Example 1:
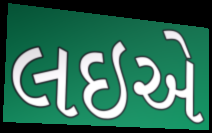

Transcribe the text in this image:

લઇએ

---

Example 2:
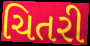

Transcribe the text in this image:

ચિતરી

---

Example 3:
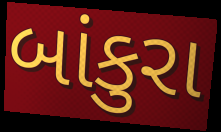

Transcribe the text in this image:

બાંકુરા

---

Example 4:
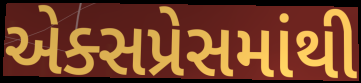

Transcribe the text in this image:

એક્સપ્રેસમાંથી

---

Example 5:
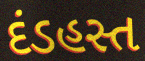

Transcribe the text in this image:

દંડહસ્ત